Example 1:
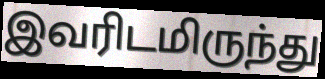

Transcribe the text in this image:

இவரிடமிருந்து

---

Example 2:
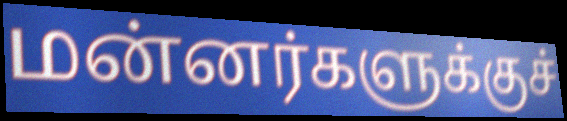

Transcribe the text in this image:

மன்னர்களுக்குச்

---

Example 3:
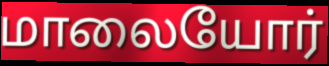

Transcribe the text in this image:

மாலையோர்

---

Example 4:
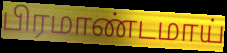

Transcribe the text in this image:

பிரமாண்டமாய்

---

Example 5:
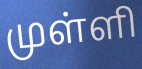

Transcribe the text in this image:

முள்ளி